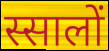
स्सालों